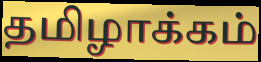
தமிழாக்கம்